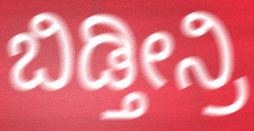
ಬಿಡ್ತೀನ್ರಿ